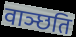
वाञ्छति